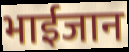
भाईजान